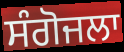
ਸੰਗੋਜਲਾ